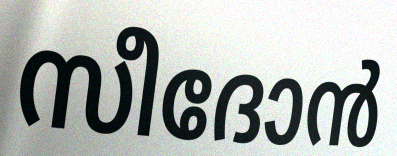
സീദോൻ